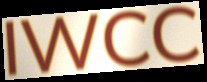
IWCC